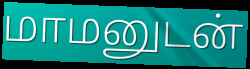
மாமனுடன்